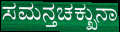
ಸಮನ್ತಚಕ್ಖುನಾ